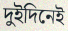
দুইদিনেই